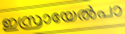
ഇസ്രായേൽപാ